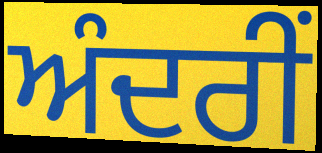
ਅੰਦਰੀਂ